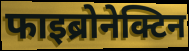
फाइब्रोनेक्टिन